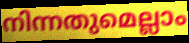
നിന്നതുമെല്ലാം